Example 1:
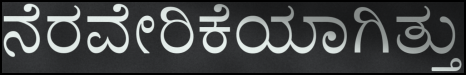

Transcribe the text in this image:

ನೆರವೇರಿಕೆಯಾಗಿತ್ತು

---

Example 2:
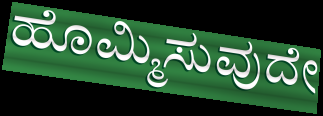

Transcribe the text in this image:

ಹೊಮ್ಮಿಸುವುದೇ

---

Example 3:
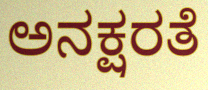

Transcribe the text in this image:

ಅನಕ್ಷರತೆ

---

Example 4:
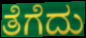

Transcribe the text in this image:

ತೆಗೆದು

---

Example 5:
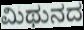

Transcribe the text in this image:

ಮಿಥುನದ